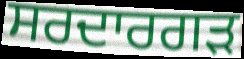
ਸਰਦਾਰਗੜ